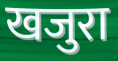
खजुरा